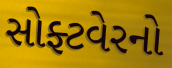
સોફ્ટવેરનો